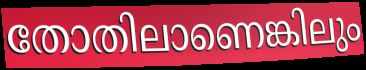
തോതിലാണെങ്കിലും